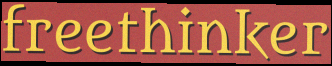
freethinker